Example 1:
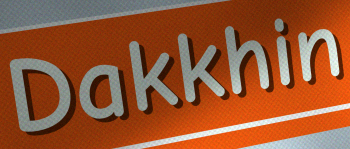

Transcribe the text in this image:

Dakkhin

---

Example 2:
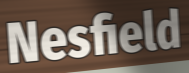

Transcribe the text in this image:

Nesfield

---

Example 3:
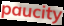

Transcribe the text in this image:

paucity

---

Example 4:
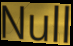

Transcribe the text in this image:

Null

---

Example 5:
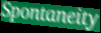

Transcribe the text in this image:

Spontaneity